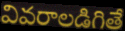
వివరాలడిగితే